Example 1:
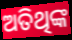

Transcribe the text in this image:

ଅତିଥିଙ୍କ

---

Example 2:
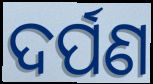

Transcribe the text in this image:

ଦର୍ପଣ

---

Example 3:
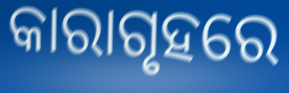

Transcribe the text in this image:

କାରାଗୃହରେ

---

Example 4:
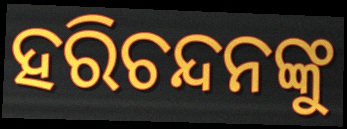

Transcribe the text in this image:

ହରିଚନ୍ଦନଙ୍କୁ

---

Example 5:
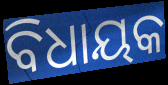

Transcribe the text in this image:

ବିଧାୟକ